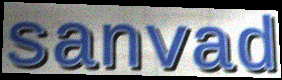
sanvad